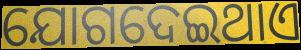
ଯୋଗଦେଇଥାଏ